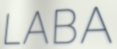
LABA